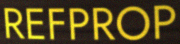
REFPROP